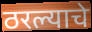
ठरल्याचे